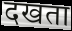
दखता